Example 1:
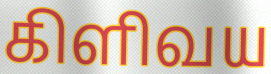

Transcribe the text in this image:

கிளிவய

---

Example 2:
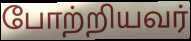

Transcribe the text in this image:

போற்றியவர்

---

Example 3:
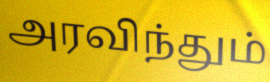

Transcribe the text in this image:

அரவிந்தும்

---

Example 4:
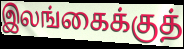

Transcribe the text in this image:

இலங்கைக்குத்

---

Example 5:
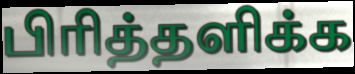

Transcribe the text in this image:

பிரித்தளிக்க